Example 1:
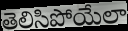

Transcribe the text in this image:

తెలిసిపోయేలా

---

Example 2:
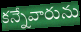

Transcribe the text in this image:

కన్నేవారును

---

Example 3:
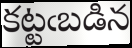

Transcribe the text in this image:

కట్టఁబడిన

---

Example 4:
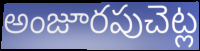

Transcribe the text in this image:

అంజూరపుచెట్ల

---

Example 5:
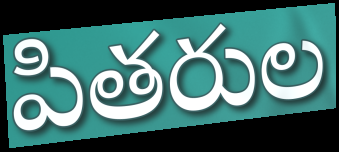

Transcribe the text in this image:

పితరుల